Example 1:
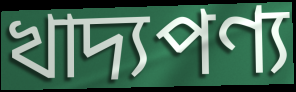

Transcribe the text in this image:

খাদ্যপণ্য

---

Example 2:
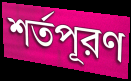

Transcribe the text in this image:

শর্তপূরণ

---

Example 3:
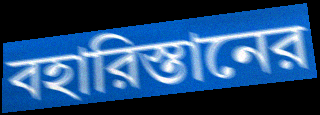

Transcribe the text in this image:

বহারিস্তানের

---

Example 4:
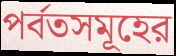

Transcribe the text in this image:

পর্বতসমূহের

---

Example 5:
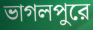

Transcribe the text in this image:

ভাগলপুরে